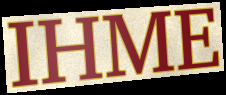
IHME